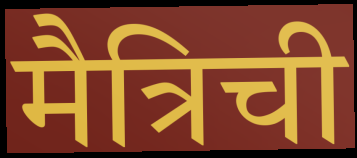
मैत्रिची